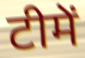
टीमें